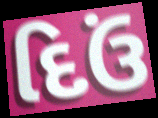
દિઉં